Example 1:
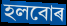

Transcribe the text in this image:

হলবোৰ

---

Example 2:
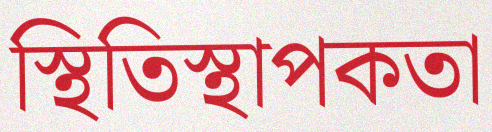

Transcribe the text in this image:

স্থিতিস্থাপকতা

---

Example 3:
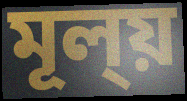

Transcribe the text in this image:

মূল্য়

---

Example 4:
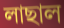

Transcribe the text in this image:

লাছাল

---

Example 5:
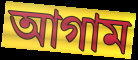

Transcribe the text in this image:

আগাম